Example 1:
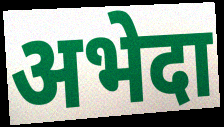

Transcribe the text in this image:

अभेदा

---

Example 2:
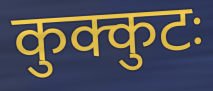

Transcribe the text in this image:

कुक्कुटः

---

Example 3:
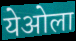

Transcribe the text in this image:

येओला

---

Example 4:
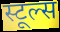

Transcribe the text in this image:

स्टूल्स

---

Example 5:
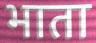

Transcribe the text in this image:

भाता